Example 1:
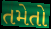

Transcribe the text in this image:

તમેતો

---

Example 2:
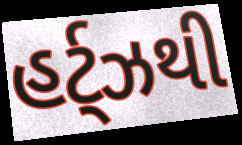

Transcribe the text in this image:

હર્ટ્ઝથી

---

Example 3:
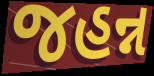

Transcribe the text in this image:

જહન્ન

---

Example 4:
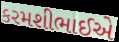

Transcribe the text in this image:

કરમશીભાઈએ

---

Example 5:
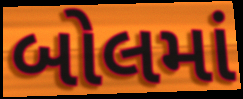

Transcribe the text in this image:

બોલમાં